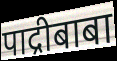
पाद्रीबाबा